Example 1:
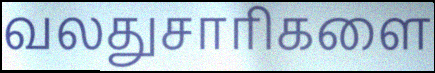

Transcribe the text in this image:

வலதுசாரிகளை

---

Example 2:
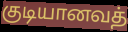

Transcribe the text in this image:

குடியானவத்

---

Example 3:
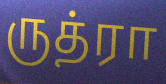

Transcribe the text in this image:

ருத்ரா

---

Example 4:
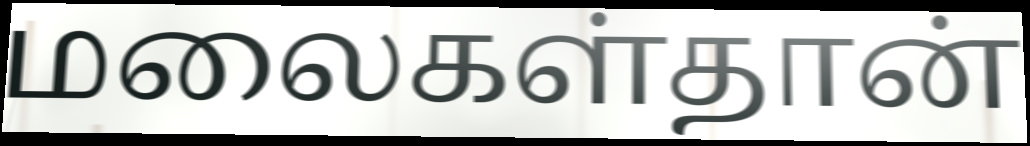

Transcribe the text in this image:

மலைகள்தான்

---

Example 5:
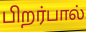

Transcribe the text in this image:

பிறர்பால்